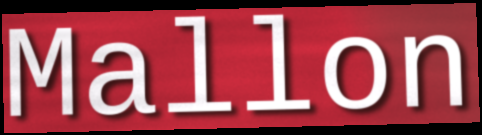
Mallon